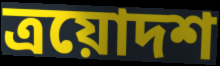
ত্রয়োদশ